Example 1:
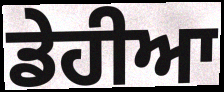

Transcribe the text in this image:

ਡੇਹੀਆ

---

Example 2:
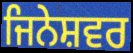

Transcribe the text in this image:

ਜਿਨੇਸ਼ਵਰ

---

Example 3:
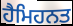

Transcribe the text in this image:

ਹੈਮਿਹਨਤ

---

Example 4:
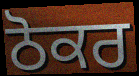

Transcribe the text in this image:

ਠੋਕਰ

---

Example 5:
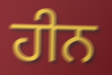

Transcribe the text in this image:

ਹੀਨ